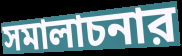
সমালাচনার